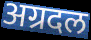
अग्रदल